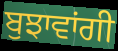
ਬੁਝਾਵਾਂਗੀ